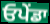
ਓਪੇਂਡਾ